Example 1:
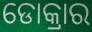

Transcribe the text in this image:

ଡୋକ୍ରାର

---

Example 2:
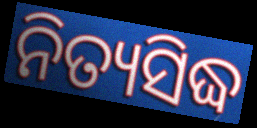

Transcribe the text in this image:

ନିତ୍ୟସିଦ୍ଧ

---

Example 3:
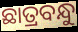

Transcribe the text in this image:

ଛାତ୍ରବନ୍ଧୁ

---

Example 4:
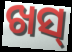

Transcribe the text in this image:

ଖସ୍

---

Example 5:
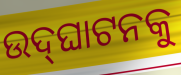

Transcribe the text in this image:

ଉଦ୍‌ଘାଟନକୁ